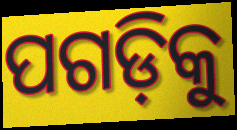
ପଗଡ଼ିକୁ